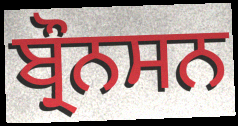
ਬ੍ਰੌਨਸਨ